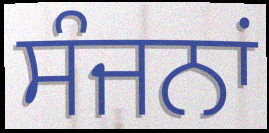
ਸੰਜਨਾਂ